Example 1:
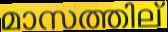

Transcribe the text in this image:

മാസത്തില്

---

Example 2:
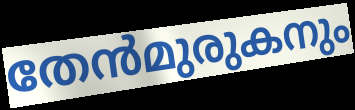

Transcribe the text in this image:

തേൻമുരുകനും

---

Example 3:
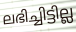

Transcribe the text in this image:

ലഭിച്ചിട്ടില്ല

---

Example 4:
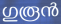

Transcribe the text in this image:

ഗുരൂൻ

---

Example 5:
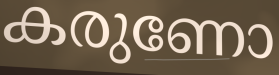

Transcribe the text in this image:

കരുണോ